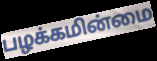
பழக்கமின்மை